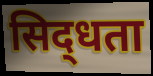
सिद्‌धता